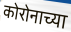
कोरोनाच्या